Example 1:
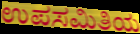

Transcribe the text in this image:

ಉಪಸಮಿತಿಯ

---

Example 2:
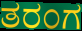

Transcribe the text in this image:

ತರಂಗ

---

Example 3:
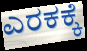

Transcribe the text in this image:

ಎರಕಕ್ಕೆ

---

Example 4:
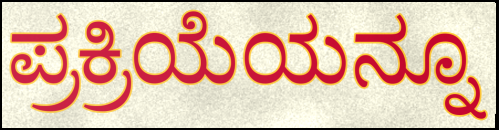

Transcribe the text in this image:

ಪ್ರಕ್ರಿಯೆಯನ್ನೂ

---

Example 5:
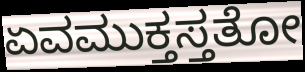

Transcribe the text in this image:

ಏವಮುಕ್ತಸ್ತತೋ